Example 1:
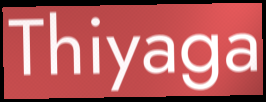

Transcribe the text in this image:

Thiyaga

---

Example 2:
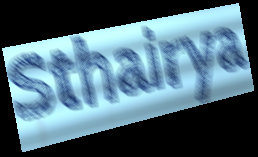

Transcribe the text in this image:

Sthairya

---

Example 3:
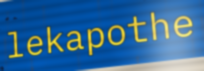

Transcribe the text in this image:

lekapothe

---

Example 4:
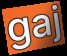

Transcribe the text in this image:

gaj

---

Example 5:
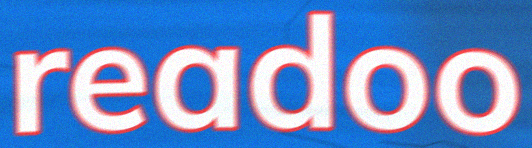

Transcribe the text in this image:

readoo